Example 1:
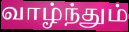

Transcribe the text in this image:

வாழ்ந்தும்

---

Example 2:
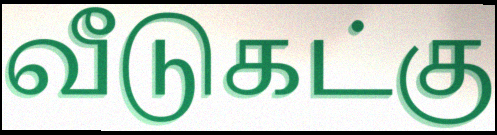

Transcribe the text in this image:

வீடுகட்கு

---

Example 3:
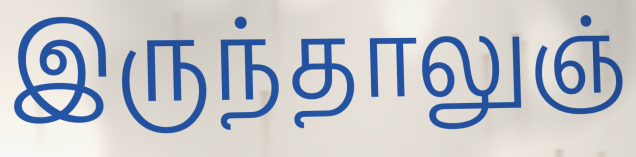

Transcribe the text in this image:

இருந்தாலுஞ்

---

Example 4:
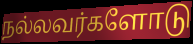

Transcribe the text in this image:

நல்லவர்களோடு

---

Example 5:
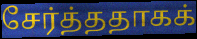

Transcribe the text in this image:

சேர்த்ததாகக்